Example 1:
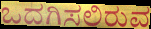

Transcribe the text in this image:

ಒದಗಿಸಲಿರುವ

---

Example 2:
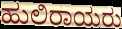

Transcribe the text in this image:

ಹುಲಿರಾಯರು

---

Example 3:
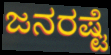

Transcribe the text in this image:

ಜನರಷ್ಟೆ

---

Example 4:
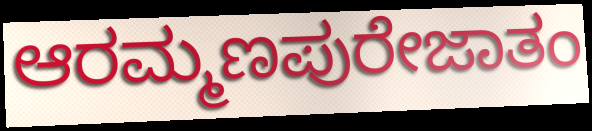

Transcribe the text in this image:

ಆರಮ್ಮಣಪುರೇಜಾತಂ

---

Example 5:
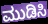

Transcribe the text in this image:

ಮುಡಿಸಿ